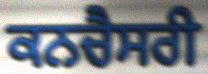
ਕਨਚੈਸਰੀ